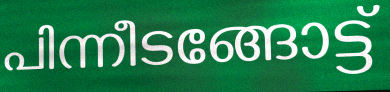
പിന്നീടങ്ങോട്ട്